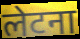
लेटना